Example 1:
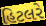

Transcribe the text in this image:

હિટલરે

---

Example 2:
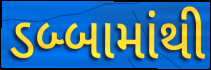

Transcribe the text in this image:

ડબ્બામાંથી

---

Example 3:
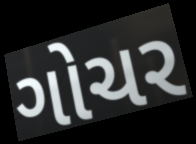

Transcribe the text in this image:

ગોચર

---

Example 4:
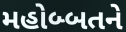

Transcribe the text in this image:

મહોબ્બતને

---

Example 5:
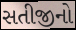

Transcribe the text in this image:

સતીજીનો